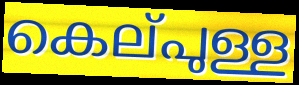
കെല്‌പുള്ള